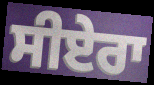
ਸੀਏਰਾ